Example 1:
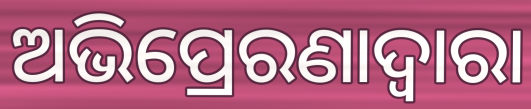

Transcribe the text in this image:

ଅଭିପ୍ରେରଣାଦ୍ୱାରା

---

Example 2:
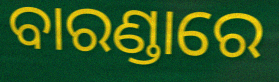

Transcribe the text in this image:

ବାରଣ୍ଡାରେ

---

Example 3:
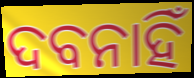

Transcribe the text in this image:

ଦବନାହିଁ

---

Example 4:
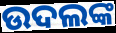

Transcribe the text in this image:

ଉଦଲଙ୍କ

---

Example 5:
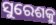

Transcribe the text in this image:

ସୁରେଶକୁ